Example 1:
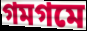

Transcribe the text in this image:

গমগমে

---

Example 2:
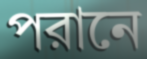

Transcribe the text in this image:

পরানে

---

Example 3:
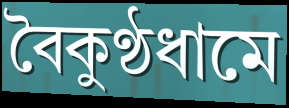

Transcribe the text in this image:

বৈকুণ্ঠধামে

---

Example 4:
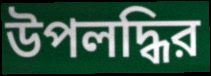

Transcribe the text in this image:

উপলদ্ধির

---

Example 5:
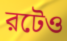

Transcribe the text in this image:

রটেও